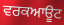
ਵਰਕਆਊਟ